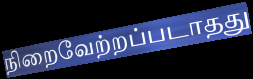
நிறைவேற்றப்படாதது